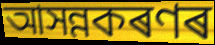
আসন্নকৰণৰ